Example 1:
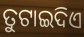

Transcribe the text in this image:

ତୁଟାଇଦିଏ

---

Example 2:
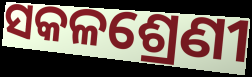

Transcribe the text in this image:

ସକଳଶ୍ରେଣୀ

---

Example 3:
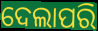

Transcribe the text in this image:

ଦେଲାପରି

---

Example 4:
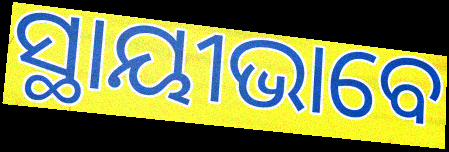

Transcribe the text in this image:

ସ୍ଥାୟୀଭାବେ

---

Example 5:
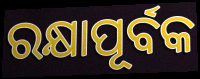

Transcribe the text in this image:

ରକ୍ଷାପୂର୍ବକ